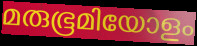
മരുഭൂമിയോളം